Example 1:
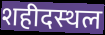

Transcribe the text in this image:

शहीदस्थल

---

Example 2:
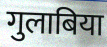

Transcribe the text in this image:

गुलाबिया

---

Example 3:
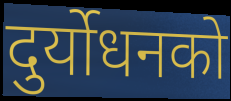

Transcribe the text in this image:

दुर्योधनको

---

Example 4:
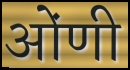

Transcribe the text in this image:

ओंणी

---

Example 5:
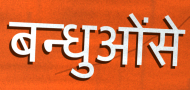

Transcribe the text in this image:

बन्धुओंसे